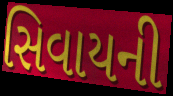
સિવાયની